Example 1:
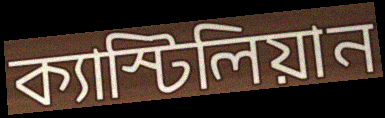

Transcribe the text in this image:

ক্যাস্টিলিয়ান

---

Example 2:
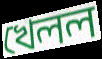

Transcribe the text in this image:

খেলল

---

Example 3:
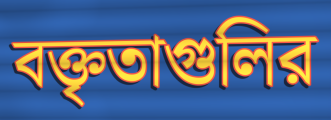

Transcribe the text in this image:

বক্তৃতাগুলির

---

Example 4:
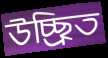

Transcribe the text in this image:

উচ্ছ্রিত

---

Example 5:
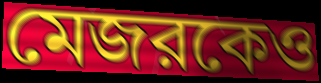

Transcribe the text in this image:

মেজরকেও